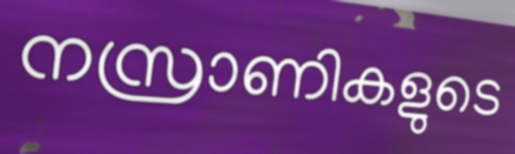
നസ്രാണികളുടെ